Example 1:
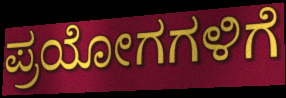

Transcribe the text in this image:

ಪ್ರಯೋಗಗಳಿಗೆ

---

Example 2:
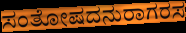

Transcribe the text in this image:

ಸಂತೋಷದನುರಾಗರಸ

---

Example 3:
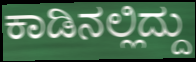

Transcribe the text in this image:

ಕಾಡಿನಲ್ಲಿದ್ದು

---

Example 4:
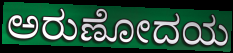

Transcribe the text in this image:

ಅರುಣೋದಯ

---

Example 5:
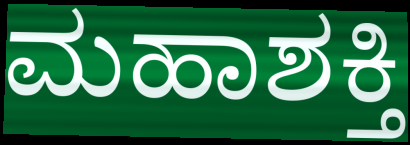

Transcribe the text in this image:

ಮಹಾಶಕ್ತಿ